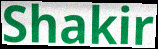
Shakir